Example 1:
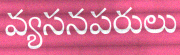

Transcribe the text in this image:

వ్యసనపరులు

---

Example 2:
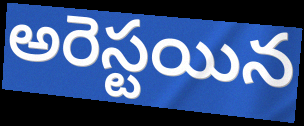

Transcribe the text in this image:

అరెస్టయిన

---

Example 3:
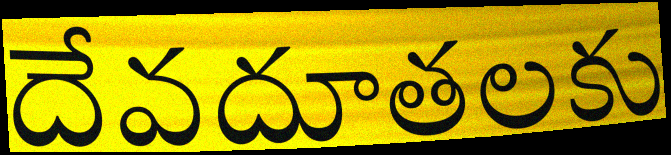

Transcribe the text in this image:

దేవదూతలకు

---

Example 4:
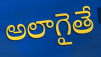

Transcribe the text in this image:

అలాగైతే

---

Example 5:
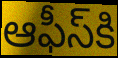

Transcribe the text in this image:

ఆఫీస్‌కి